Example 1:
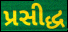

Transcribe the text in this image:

પ્રસીદ્ધ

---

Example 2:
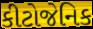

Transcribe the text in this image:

કીટોજેનિક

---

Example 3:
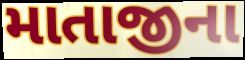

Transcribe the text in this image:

માતાજીના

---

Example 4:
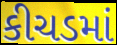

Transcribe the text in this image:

કીચડમાં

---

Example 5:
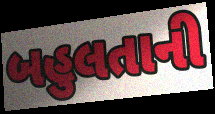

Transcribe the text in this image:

બહુલતાની